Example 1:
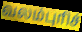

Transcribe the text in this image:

வலம்புரிச்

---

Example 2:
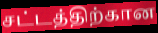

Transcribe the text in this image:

சட்டத்திற்கான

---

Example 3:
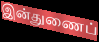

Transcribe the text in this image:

இன்துணைப்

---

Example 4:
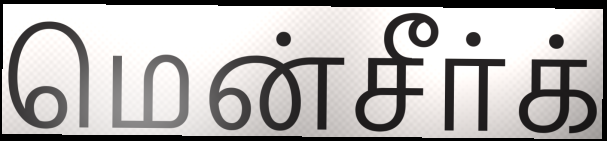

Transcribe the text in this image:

மென்சீர்க்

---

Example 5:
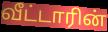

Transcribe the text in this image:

வீட்டாரின்